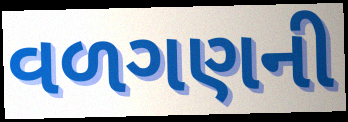
વળગણની